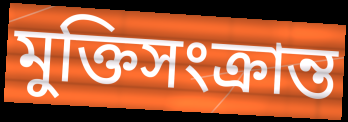
মুক্তিসংক্রান্ত